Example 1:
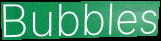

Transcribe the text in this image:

Bubbles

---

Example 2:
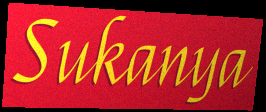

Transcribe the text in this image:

Sukanya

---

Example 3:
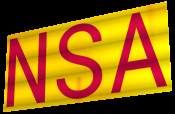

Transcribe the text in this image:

NSA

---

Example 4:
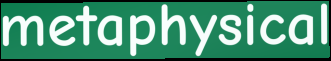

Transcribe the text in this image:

metaphysical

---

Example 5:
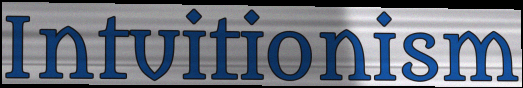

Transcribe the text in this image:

Intuitionism